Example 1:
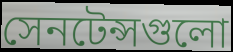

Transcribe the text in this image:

সেনটেন্সগুলো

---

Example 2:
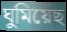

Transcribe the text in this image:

ঘুমিয়েছ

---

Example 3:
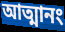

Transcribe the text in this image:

আত্মানং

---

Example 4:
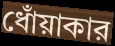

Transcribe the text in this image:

ধোঁয়াকার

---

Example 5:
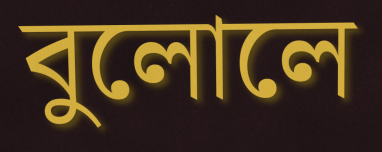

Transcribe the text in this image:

বুলোলে